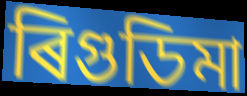
ৰিগুডিমা